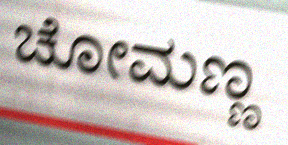
ಚೋಮಣ್ಣ